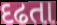
દઢતા